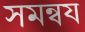
সমন্বয